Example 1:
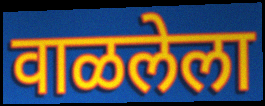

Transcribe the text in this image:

वाळलेला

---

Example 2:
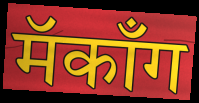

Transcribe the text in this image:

मॅकाँग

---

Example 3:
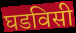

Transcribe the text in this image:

घडविसी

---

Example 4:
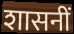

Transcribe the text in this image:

शासनीं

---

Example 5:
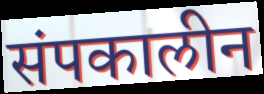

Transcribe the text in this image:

संपकालीन